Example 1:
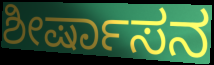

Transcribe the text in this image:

ಶೀರ್ಷಾಸನ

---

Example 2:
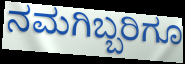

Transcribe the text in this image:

ನಮಗಿಬ್ಬರಿಗೂ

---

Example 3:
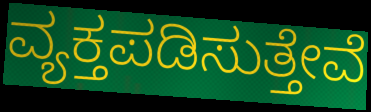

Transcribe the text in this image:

ವ್ಯಕ್ತಪಡಿಸುತ್ತೇವೆ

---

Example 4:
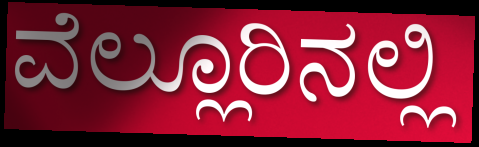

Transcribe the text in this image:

ವೆಲ್ಲೂರಿನಲ್ಲಿ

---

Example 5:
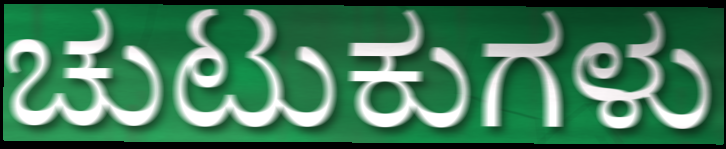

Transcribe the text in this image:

ಚುಟುಕುಗಳು